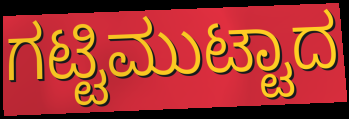
ಗಟ್ಟಿಮುಟ್ಟಾದ